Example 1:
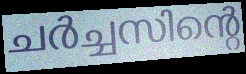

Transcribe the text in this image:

ചർച്ചസിന്റെ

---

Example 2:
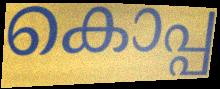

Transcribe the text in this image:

കൊപ്പ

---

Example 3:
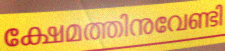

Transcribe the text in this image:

ക്ഷേമത്തിനുവേണ്ടി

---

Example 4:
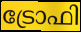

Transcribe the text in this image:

ട്രോഫി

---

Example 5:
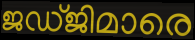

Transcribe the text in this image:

ജഡ്ജിമാരെ